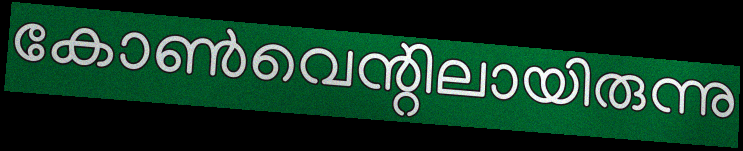
കോൺവെന്റിലായിരുന്നു